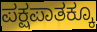
ಪಕ್ಷಪಾತಕ್ಕೂ